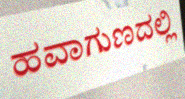
ಹವಾಗುಣದಲ್ಲಿ